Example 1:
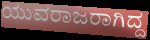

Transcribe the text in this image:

ಯುವರಾಜರಾಗಿದ್ದ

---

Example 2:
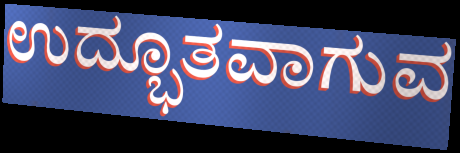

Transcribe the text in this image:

ಉದ್ಭೂತವಾಗುವ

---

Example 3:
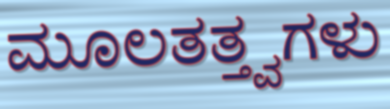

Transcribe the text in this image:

ಮೂಲತತ್ತ್ವಗಳು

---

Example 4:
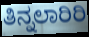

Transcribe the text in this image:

ತಿನ್ನಲಾರಿರಿ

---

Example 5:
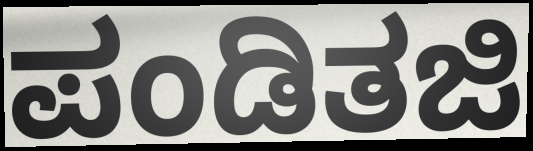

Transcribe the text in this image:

ಪಂಡಿತಜಿ